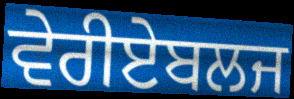
ਵੇਰੀਏਬਲਜ